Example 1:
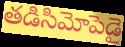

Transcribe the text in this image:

తడిసిమోపెడై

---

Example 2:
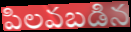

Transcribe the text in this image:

పిలవబడిన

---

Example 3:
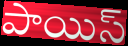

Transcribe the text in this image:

పాయిస్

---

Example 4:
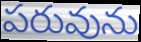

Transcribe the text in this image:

పరువును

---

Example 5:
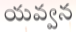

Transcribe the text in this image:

యవ్వన